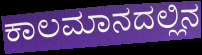
ಕಾಲಮಾನದಲ್ಲಿನ